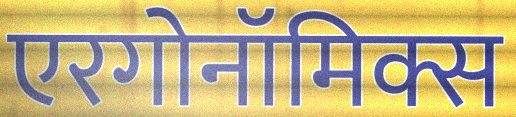
एरगोनॉमिक्स